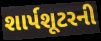
શાર્પશૂટરની